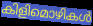
കിളിമൊഴികൾ